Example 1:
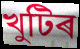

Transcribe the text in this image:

খুটিৰ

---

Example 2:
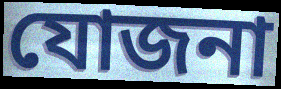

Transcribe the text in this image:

যোজনা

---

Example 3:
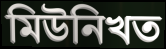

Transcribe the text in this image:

মিউনিখত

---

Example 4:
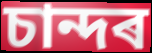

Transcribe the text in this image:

চান্দৰ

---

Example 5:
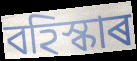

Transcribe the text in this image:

বহিস্কাৰ